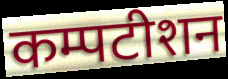
कम्पटीशन